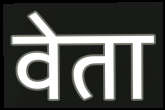
वेता